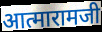
आत्मारामजी